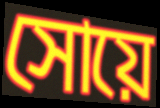
সোয়ে